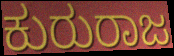
ಕುರುರಾಜ